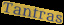
Tantras